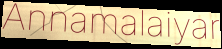
Annamalaiyar